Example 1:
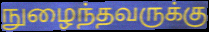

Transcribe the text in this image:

நுழைந்தவருக்கு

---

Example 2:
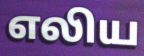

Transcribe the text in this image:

எலிய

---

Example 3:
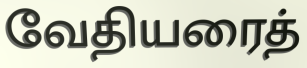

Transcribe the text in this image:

வேதியரைத்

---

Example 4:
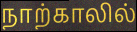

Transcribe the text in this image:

நாற்காலில்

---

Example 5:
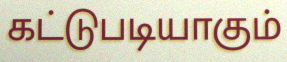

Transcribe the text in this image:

கட்டுபடியாகும்